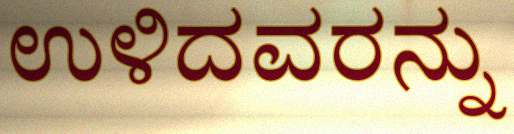
ಉಳಿದವರನ್ನು